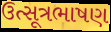
ઉત્સૂત્રભાષણ